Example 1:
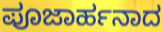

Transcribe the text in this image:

ಪೂಜಾರ್ಹನಾದ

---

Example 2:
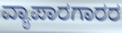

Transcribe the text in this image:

ವ್ಯಾಪಾರಗಾರರ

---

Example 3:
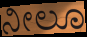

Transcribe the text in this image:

ನೀಲೂ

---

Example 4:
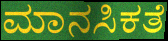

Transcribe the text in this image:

ಮಾನಸಿಕತೆ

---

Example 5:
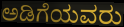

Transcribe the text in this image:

ಅಡಿಗೆಯವರು